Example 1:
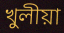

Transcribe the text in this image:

খুলীয়া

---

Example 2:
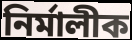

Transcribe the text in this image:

নিৰ্মালীক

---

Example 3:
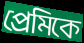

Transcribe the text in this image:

প্ৰেমিকে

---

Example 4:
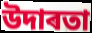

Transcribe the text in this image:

উদাৰতা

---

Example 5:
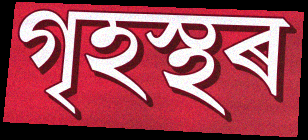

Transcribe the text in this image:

গৃহস্থৰ